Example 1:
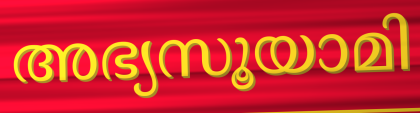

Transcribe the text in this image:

അഭ്യസൂയാമി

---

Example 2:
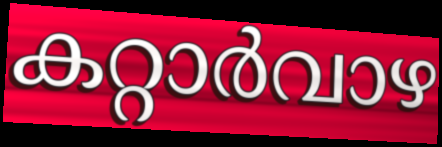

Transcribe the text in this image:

കറ്റാർവാഴ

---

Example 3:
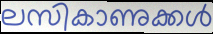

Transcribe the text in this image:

ലസികാണുക്കൾ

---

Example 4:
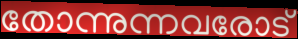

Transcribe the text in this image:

തോന്നുന്നവരോട്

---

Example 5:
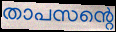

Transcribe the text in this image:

താപസന്റെ